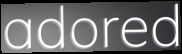
adored